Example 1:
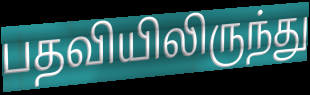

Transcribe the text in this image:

பதவியிலிருந்து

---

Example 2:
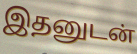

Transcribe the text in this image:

இதனுடன்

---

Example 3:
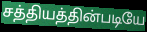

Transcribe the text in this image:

சத்தியத்தின்படியே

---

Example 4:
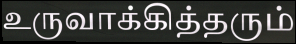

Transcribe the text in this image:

உருவாக்கித்தரும்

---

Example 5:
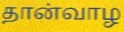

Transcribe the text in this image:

தான்வாழ